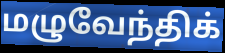
மழுவேந்திக்